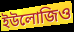
ইউলোজিও